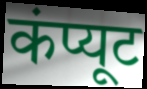
कंप्यूट